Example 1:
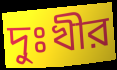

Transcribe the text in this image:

দুঃখীর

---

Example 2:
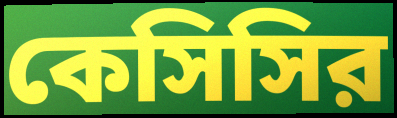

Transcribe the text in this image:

কেসিসির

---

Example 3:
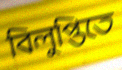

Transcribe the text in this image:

বিলুপ্তিতে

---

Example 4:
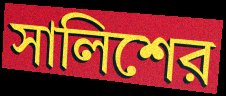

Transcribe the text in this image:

সালিশের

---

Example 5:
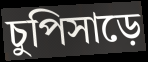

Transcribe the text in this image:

চুপিসাড়ে